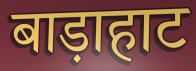
बाड़ाहाट